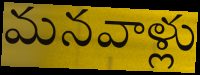
మనవాళ్లు